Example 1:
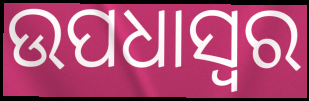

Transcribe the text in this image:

ଉପଧାସ୍ୱର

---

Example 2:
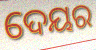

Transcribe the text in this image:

ଦେୟର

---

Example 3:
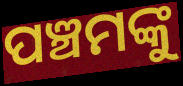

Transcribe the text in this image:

ପଞ୍ଚମଙ୍କୁ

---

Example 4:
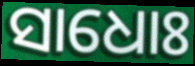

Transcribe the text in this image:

ସାଧୋଃ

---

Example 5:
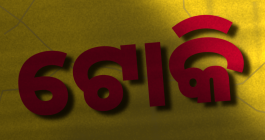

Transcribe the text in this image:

ଟୋକି